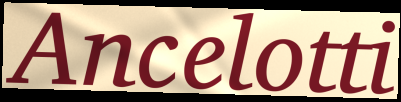
Ancelotti